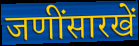
जणींसारखें